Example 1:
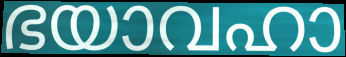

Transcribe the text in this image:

ഭയാവഹാ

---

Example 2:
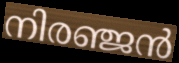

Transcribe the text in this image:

നിരഞ്ജൻ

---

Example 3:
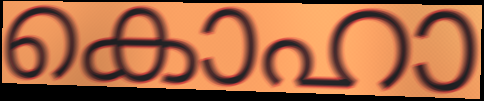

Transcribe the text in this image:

കൊഹാ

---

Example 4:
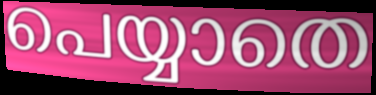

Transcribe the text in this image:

പെയ്യാതെ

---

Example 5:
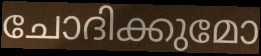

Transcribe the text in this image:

ചോദിക്കുമോ